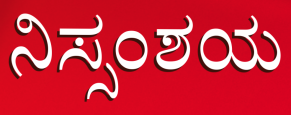
ನಿಸ್ಸಂಶಯ